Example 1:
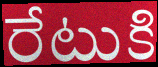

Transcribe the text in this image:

రేటుకి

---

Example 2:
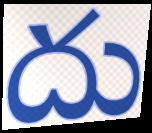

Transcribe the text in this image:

దు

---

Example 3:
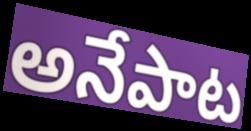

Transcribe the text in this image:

అనేపాట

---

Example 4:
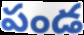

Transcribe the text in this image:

పండ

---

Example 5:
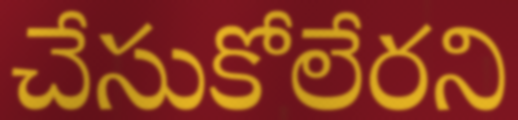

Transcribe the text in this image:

చేసుకోలేరని